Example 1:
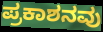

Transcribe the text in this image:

ಪ್ರಕಾಶನವು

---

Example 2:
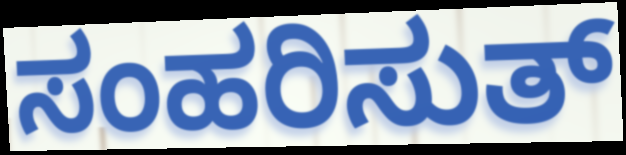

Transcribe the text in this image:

ಸಂಹರಿಸುತ್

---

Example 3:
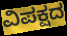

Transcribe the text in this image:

ವಿಪಕ್ಷದ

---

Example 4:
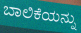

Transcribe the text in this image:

ಬಾಲಿಕೆಯನ್ನು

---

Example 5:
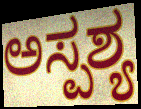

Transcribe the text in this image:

ಅಸ್ಪಶ್ಯ